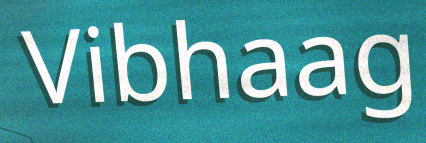
Vibhaag